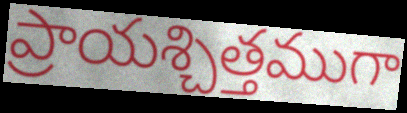
ప్రాయశ్చిత్తముగా